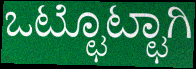
ಒಟ್ಟೊಟ್ಟಾಗಿ